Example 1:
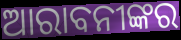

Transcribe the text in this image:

ଆରାବନୀଙ୍କର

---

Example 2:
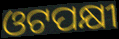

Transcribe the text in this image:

ଓଟପକ୍ଷୀ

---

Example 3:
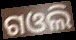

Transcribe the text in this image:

ଗଓଲି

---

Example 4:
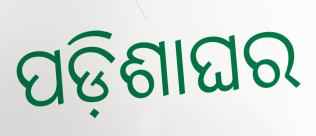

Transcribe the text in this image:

ପଡ଼ିଶାଘର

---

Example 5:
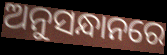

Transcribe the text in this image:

ଅନୁସନ୍ଧାନରେ